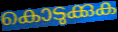
കൊടുക്കുക